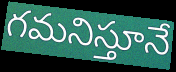
గమనిస్తూనే